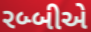
રબ્બીએ